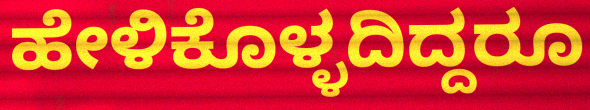
ಹೇಳಿಕೊಳ್ಳದಿದ್ದರೂ